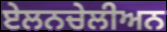
ਏਲਨਚੇਲੀਅਨ